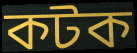
কটক